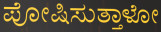
ಪೋಷಿಸುತ್ತಾಳೋ